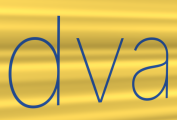
dva